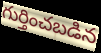
గుర్తించబడిన